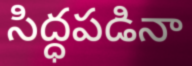
సిద్ధపడినా